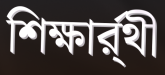
শিক্ষার্র্থী